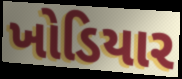
ખોડિયાર